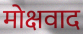
मोक्षवाद